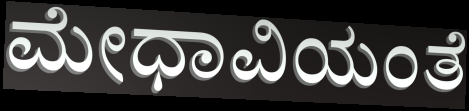
ಮೇಧಾವಿಯಂತೆ